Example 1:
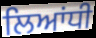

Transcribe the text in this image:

ਲਿਆਂਧੀ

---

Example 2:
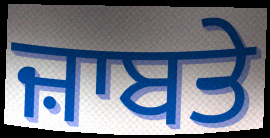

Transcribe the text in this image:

ਜ਼ਾਬਤੇ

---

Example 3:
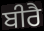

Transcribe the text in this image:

ਬੀਰੈ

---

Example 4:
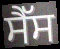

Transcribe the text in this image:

ਸੈੱਸ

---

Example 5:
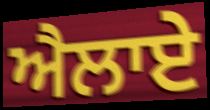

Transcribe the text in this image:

ਐਲਾਏ